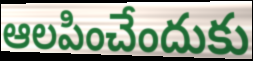
ఆలపించేందుకు